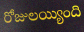
రోజులయ్యింది